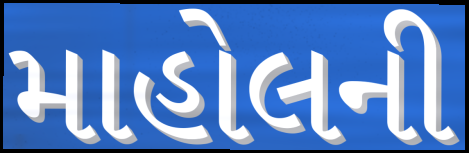
માહોલની